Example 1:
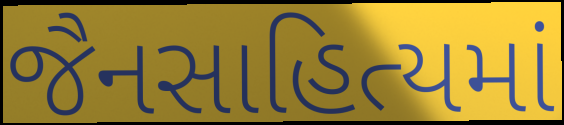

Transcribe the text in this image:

જૈનસાહિત્યમાં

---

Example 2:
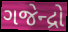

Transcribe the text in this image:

ગજેન્દ્રો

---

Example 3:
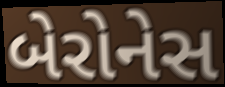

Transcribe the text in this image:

બેરોનેસ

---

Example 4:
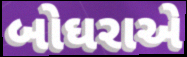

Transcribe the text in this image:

બોઘરાએ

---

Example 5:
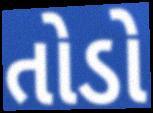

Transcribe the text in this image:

તોડો